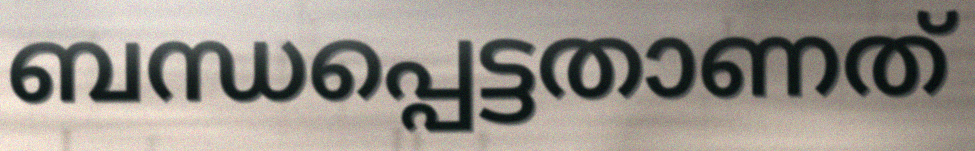
ബന്ധപ്പെട്ടതാണത്